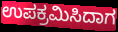
ಉಪಕ್ರಮಿಸಿದಾಗ